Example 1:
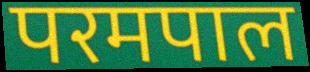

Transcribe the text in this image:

परमपाल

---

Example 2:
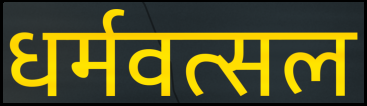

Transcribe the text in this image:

धर्मवत्सल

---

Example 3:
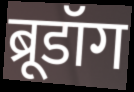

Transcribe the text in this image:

ब्रूडॉग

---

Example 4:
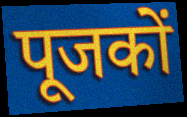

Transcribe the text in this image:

पूजकों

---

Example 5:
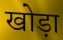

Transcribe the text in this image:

खोड़ा